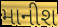
માનીશ